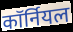
कॉर्नियल